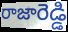
రాజారెడ్డి